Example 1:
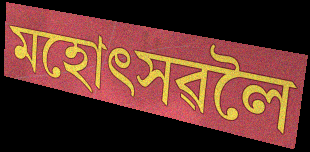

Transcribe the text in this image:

মহোৎসৱলৈ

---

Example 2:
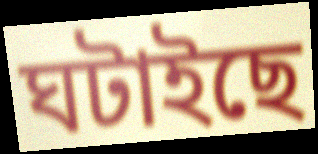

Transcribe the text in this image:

ঘটাইছে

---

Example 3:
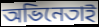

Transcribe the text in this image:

অভিনেতাই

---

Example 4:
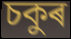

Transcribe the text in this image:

চকুৰ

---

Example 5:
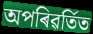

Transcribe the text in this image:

অপৰিৱৰ্তিত